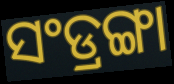
ସଂଡ୍ରଙ୍ଗା